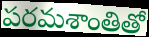
పరమశాంతితో